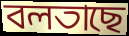
বলতাছে